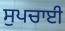
ਸੁਪਚਾਈ